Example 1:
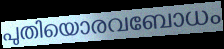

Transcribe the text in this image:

പുതിയൊരവബോധം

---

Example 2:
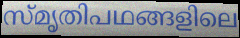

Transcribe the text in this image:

സ്മൃതിപഥങ്ങളിലെ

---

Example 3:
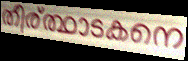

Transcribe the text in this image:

തീര്ത്ഥാടകനെ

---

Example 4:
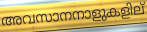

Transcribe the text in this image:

അവസാനനാളുകളില്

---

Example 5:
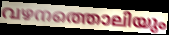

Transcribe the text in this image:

വഴനത്തൊലിയും